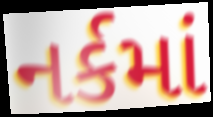
નર્કમાં